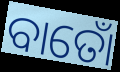
ବାତୋଁ